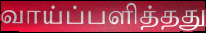
வாய்ப்பளித்தது